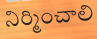
నిర్మించాలి